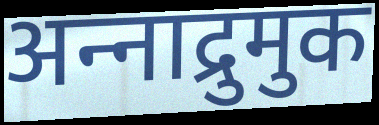
अन्नाद्रुमुक